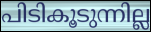
പിടികൂടുന്നില്ല